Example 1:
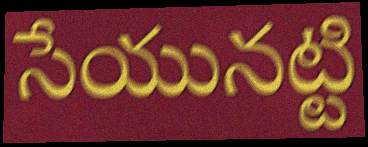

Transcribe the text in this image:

సేయునట్టి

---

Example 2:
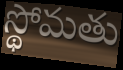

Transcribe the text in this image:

స్థోమతు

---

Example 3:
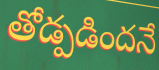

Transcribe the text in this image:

తోడ్పడిందనే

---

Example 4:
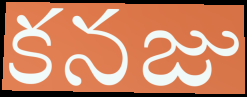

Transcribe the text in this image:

కనజు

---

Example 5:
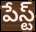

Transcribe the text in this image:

పేస్ట్